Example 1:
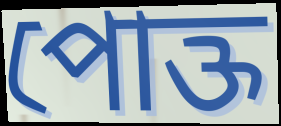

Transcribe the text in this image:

পোক্ত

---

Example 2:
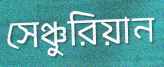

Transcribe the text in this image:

সেঞ্চুরিয়ান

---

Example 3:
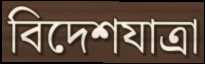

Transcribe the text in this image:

বিদেশযাত্রা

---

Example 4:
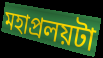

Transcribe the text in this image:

মহাপ্রলয়টা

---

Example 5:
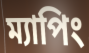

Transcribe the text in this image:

ম্যাপিং